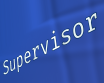
Supervisor